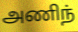
அணிந்